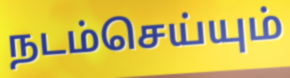
நடம்செய்யும்